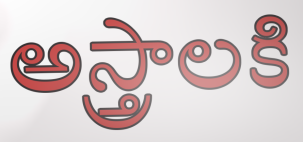
అస్త్రాలకి